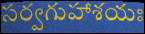
సర్వగుహాశయః